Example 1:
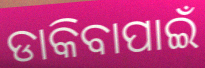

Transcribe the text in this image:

ଡାକିବାପାଇଁ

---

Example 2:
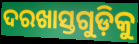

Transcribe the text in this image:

ଦରଖାସ୍ତଗୁଡ଼ିକୁ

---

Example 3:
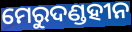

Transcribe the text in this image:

ମେରୁଦଣ୍ଡହୀନ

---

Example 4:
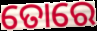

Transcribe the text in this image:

ତୋରେ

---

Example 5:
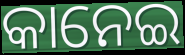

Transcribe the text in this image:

କାନେଇ